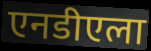
एनडीएला